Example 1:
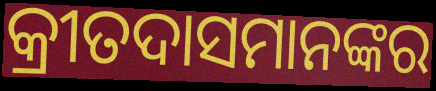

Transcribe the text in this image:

କ୍ରୀତଦାସମାନଙ୍କର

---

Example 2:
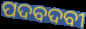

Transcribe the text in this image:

ପଦବଦବୀ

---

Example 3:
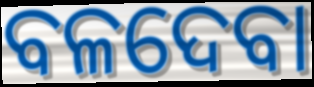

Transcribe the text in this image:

ବଳଦେବା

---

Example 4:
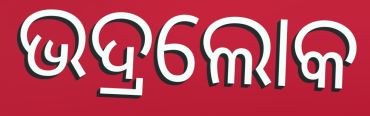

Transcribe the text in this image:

ଭଦ୍ରଲୋକ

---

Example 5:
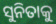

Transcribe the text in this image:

ସୁନିତାକୁ